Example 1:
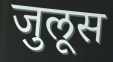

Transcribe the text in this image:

जुलूस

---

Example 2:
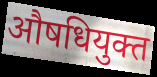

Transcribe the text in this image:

औषधियुक्त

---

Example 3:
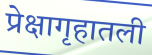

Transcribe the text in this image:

प्रेक्षागृहातली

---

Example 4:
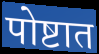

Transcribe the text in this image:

पोष्टात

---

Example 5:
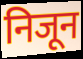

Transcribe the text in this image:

निजून